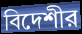
বিদেশীর